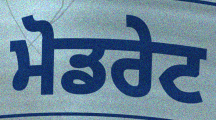
ਮੋਡਰੇਟ